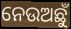
ନେଉଅଛୁଁ